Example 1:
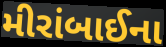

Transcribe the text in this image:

મીરાંબાઈના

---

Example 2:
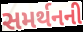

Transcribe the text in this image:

સમર્થનની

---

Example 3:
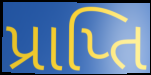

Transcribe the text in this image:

પ્રાપ્તિ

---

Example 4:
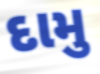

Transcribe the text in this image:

દામુ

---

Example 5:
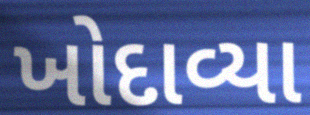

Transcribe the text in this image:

ખોદાવ્યા